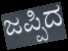
ಜಪ್ಪಿದ